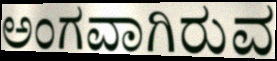
ಅಂಗವಾಗಿರುವ